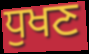
ਧੁਖਣ